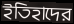
ইতিহাদের